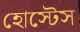
হোস্টেস